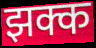
झक्क